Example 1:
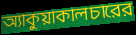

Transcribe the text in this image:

অ্যাকুয়াকালচারের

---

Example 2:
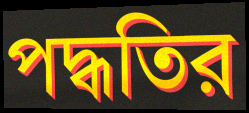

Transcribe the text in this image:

পদ্ধতির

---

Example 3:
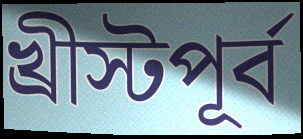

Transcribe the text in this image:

খ্রীস্টপূর্ব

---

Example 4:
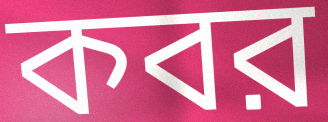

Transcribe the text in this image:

কবর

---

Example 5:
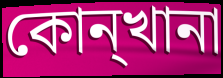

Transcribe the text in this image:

কোন্খানা